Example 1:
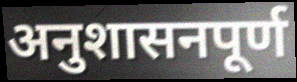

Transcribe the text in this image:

अनुशासनपूर्ण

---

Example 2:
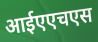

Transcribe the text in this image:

आईएएचएस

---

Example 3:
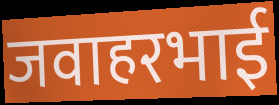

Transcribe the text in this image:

जवाहरभाई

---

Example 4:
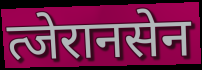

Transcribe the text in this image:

त्जेरानसेन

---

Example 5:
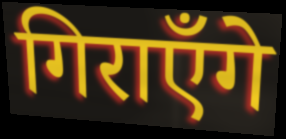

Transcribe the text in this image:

गिराएँगे